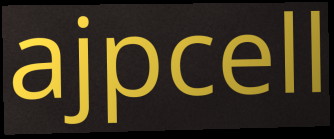
ajpcell